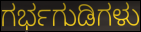
ಗರ್ಭಗುಡಿಗಳು